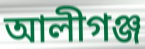
আলীগঞ্জ